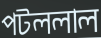
পটললাল